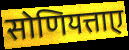
सोणियत्ताए